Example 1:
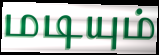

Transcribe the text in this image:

மடியும்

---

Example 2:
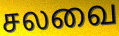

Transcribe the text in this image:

சலவை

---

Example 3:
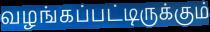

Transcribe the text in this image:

வழங்கப்பட்டிருக்கும்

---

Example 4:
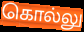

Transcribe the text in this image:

கொல்லு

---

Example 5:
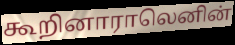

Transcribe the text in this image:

கூறினாராலெனின்